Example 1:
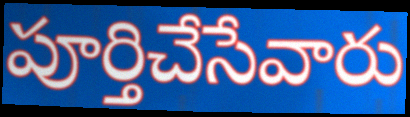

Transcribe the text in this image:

పూర్తిచేసేవారు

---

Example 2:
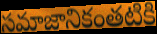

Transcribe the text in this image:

సమాజానికంతటికి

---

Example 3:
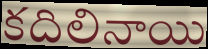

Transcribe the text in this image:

కదిలినాయి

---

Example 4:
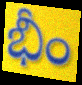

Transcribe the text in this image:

భీం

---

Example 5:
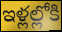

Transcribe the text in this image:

ఇళ్లల్లోకి